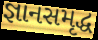
જ્ઞાનસમૃદ્ધ